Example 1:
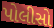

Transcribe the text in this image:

પોલીસો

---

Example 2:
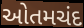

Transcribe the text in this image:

ઓતમચંદ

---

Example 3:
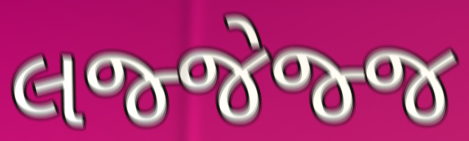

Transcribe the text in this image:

લજ્જેજ્જ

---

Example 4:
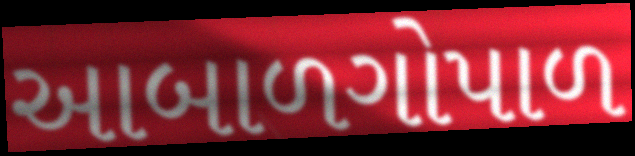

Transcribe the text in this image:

આબાળગોપાળ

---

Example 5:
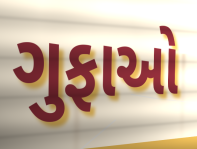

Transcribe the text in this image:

ગુફાઓ